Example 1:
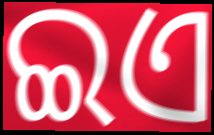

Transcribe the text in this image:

ଇଏ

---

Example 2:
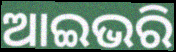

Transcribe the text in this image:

ଆଇଭରି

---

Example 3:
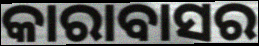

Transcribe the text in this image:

କାରାବାସର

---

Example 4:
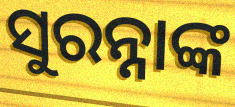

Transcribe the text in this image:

ସୁରନ୍ନାଙ୍କ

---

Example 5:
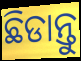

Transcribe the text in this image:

ଛିଡାନ୍ତୁ